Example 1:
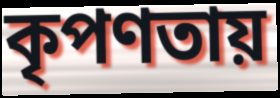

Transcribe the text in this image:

কৃপণতায়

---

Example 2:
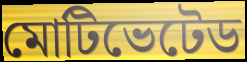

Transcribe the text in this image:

মোটিভেটেড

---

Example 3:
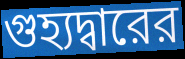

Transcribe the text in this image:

গুহ্যদ্বারের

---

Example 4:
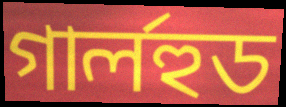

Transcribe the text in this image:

গার্লহুড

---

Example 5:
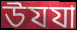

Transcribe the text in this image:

উযযা